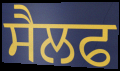
ਸੈਲਫ